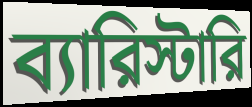
ব্যারিস্টারি